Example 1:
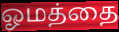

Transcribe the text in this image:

ஓமத்தை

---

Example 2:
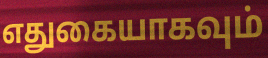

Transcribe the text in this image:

எதுகையாகவும்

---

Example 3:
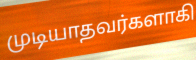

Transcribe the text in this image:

முடியாதவர்களாகி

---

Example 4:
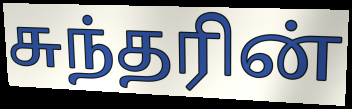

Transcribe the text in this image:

சுந்தரின்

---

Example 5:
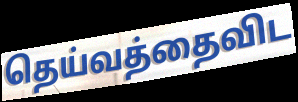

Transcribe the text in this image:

தெய்வத்தைவிட